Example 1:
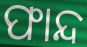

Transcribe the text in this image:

ଫାନ୍ଦ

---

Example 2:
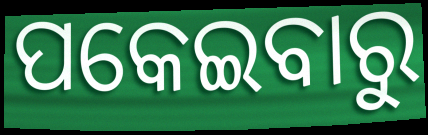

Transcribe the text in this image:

ପକେଇବାରୁ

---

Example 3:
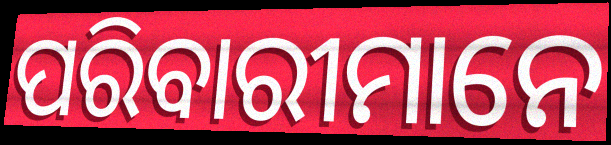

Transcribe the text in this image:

ପରିବାରୀମାନେ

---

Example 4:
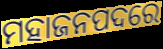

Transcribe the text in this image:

ମହାଜନପଦରେ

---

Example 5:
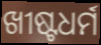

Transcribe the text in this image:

ଖୀଷ୍ଟଧର୍ମ